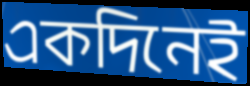
একদিনেই